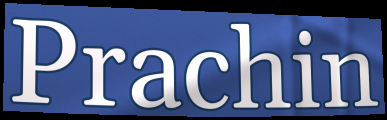
Prachin